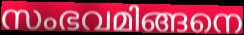
സംഭവമിങ്ങനെ